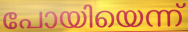
പോയിയെന്ന്